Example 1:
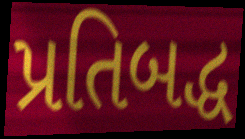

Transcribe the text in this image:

પ્રતિબદ્ધ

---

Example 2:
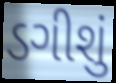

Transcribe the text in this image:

ડગીશું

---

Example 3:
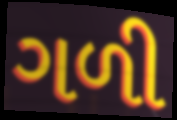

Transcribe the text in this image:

ગળી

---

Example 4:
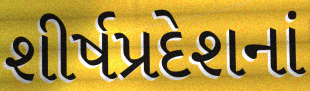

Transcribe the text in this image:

શીર્ષપ્રદેશનાં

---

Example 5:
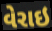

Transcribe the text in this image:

વેરાઇ